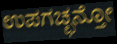
ಉಪಗಚ್ಛನ್ತೋ